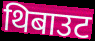
थिबाउट